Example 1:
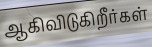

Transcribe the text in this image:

ஆகிவிடுகிறீர்கள்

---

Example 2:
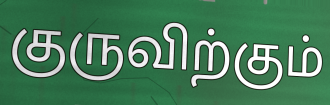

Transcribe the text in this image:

குருவிற்கும்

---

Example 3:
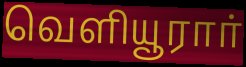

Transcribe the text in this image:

வெளியூரார்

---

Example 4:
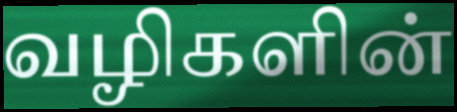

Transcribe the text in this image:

வழிகளின்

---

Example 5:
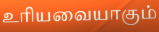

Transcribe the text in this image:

உரியவையாகும்